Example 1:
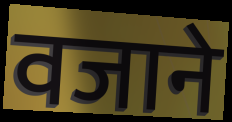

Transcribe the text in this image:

वजाने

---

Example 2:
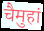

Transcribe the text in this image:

चैमुहां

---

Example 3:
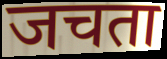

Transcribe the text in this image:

जचता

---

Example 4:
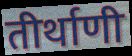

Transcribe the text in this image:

तीर्थाणी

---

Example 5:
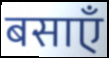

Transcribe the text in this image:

बसाएँ